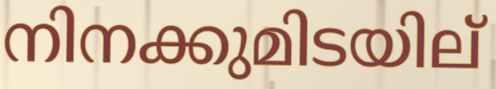
നിനക്കുമിടയില്